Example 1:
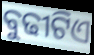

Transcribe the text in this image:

ବୁଢୀଟିଏ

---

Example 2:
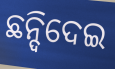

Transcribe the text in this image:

ଛନ୍ଦିଦେଇ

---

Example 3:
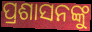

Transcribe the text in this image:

ପ୍ରଶାସନଙ୍କୁ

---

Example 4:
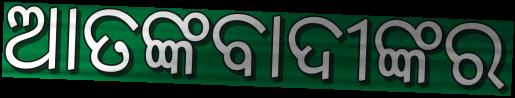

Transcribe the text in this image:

ଆତଙ୍କବାଦୀଙ୍କର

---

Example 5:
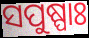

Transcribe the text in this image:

ସପୁଷ୍ପାଃ